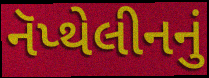
નૅપ્થેલીનનું